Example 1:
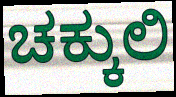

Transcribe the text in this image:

ಚಕ್ಕುಲಿ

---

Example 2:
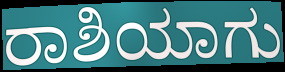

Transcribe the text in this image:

ರಾಶಿಯಾಗು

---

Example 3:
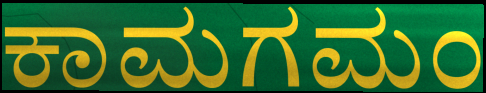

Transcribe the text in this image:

ಕಾಮಗಮಂ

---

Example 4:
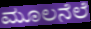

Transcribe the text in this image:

ಮೂಲನೆಲೆ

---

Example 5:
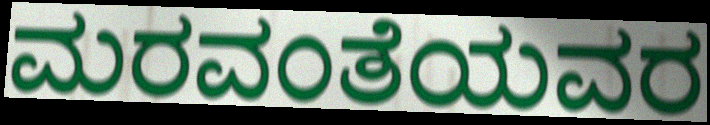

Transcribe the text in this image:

ಮರವಂತೆಯವರ